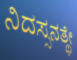
ನಿದಸ್ಸನತ್ಥೇ